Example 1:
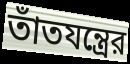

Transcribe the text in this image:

তাঁতযন্ত্রের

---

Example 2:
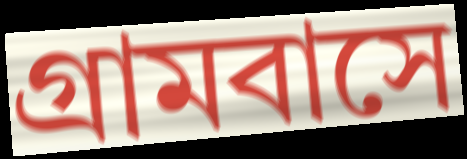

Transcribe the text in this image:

গ্রামবাসে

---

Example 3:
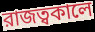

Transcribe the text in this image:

রাজত্বকালে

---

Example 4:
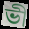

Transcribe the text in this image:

ভী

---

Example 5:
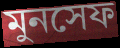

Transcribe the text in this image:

মুনসেফ